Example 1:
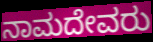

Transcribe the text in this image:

ನಾಮದೇವರು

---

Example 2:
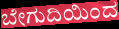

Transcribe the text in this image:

ಬೇಗುದಿಯಿಂದ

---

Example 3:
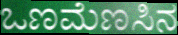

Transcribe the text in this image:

ಒಣಮೆಣಸಿನ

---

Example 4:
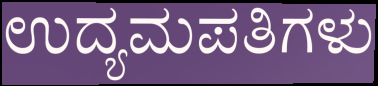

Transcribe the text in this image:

ಉದ್ಯಮಪತಿಗಳು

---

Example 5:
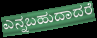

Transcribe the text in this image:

ಎನ್ನಬಹುದಾದರೆ